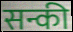
सन्की